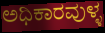
ಅಧಿಕಾರವುಳ್ಳ